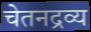
चेतनद्रव्य